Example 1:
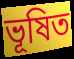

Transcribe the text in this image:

ভূষিত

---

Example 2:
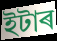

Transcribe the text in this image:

ইটাৰ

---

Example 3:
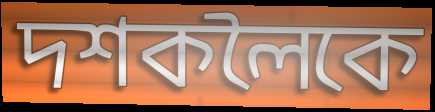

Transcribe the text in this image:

দশকলৈকে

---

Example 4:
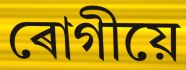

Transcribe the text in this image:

ৰোগীয়ে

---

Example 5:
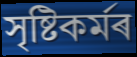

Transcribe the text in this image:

সৃষ্টিকৰ্মৰ